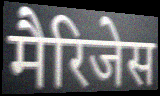
मैरिजेस